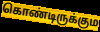
கொண்டிருக்கும